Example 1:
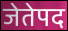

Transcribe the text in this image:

जेतेपद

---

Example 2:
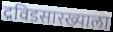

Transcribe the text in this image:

द्रविडसारख्याला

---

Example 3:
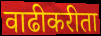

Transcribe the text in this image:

वाढीकरीता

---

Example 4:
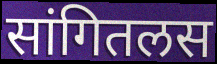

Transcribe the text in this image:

सांगितलस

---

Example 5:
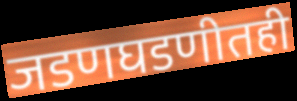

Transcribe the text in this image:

जडणघडणीतही